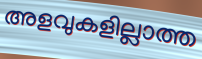
അളവുകളില്ലാത്ത